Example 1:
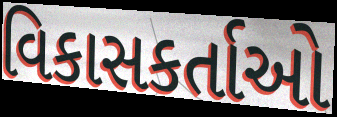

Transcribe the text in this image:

વિકાસકર્તાઓ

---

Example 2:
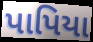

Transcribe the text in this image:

પાપિયા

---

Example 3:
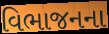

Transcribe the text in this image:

વિભાજનના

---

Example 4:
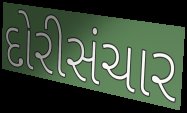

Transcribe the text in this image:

દોરીસંચાર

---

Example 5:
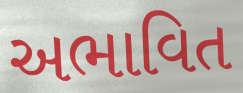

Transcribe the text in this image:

અભાવિત